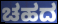
ಚಹದ